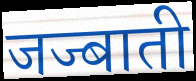
जज्बाती